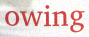
owing